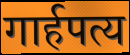
गार्हपत्य